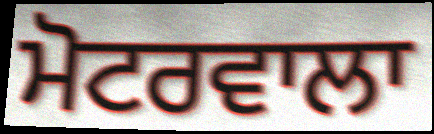
ਮੋਟਰਵਾਲਾ